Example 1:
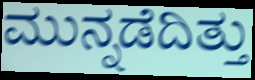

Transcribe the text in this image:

ಮುನ್ನಡೆದಿತ್ತು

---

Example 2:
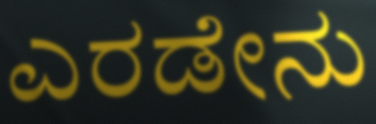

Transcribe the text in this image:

ಎರಡೇನು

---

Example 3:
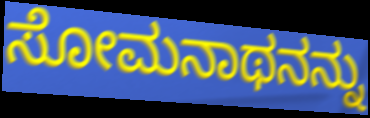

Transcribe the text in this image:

ಸೋಮನಾಥನನ್ನು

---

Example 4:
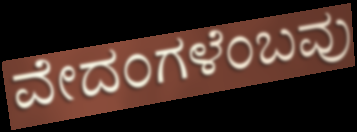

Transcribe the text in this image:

ವೇದಂಗಳೆಂಬವು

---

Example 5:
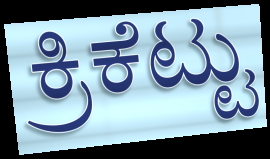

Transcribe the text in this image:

ಕ್ರಿಕೆಟ್ಟು